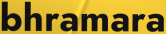
bhramara